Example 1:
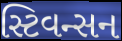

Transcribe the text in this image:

સ્ટિવન્સન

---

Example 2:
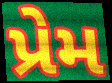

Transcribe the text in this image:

પ્રેમ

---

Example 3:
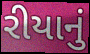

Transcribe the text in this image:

રીયાનું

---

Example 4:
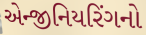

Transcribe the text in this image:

એન્જીનિયરિંગનો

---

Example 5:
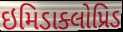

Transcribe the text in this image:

ઇમિડાક્લોપ્રિડ